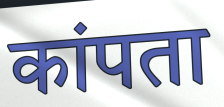
कांपता